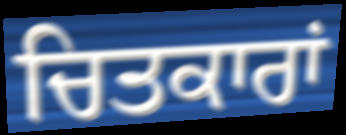
ਚਿਤਕਾਰਾਂ